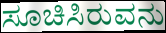
ಸೂಚಿಸಿರುವನು